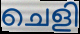
ചെളി